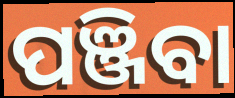
ପଞ୍ଜିବା